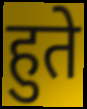
हुते